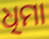
ଧିମା